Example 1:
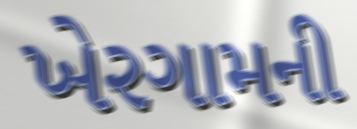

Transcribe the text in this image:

ખેરગામની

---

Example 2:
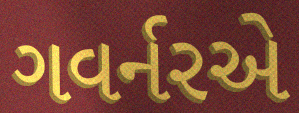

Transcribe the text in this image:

ગવર્નરએ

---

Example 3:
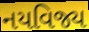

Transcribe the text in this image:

નયવિજ્ય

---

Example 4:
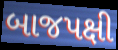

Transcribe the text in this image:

બાજપક્ષી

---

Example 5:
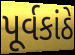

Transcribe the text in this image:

પૂર્વકાંઠે